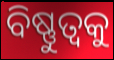
ବିଷ୍ଣୁତ୍ୱକୁ